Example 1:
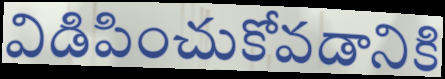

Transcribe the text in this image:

విడిపించుకోవడానికి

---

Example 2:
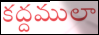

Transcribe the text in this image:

కద్దములా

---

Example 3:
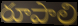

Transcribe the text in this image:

రూపాలి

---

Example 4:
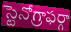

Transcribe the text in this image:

స్టెనోగ్రాఫర్గా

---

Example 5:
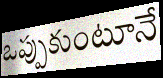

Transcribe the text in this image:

ఒప్పుకుంటూనే